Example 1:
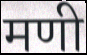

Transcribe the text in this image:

मणी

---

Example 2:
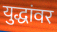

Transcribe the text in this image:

युद्धांवर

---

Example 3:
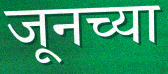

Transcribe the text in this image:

जूनच्या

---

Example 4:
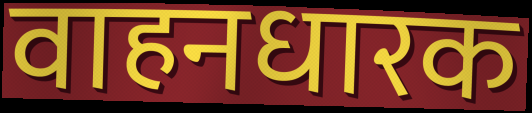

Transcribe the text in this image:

वाहनधारक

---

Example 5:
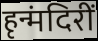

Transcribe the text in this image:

हृन्मंदिरीं